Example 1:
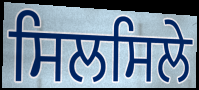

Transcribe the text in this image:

ਸਿਲਸਿਲੇ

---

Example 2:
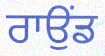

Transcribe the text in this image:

ਰਾਉਂਡ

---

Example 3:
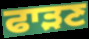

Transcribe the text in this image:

ਫਾੜਣ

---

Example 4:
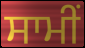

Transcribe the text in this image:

ਸਾਮੀਂ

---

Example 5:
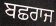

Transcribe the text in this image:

ਬਛਰਾਜ